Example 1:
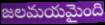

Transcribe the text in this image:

జలమయమైంది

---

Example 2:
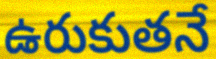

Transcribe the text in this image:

ఉరుకుతనే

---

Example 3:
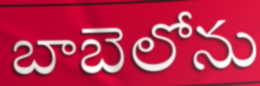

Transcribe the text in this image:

బాబెలోను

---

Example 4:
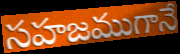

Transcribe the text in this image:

సహజముగానే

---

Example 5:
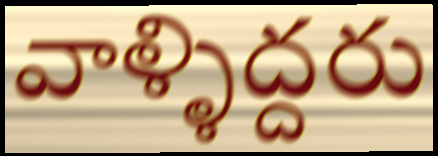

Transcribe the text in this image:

వాళ్ళిద్దరు